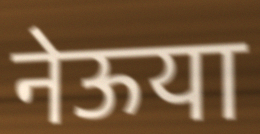
नेऊया